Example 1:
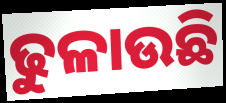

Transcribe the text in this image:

ଢୁଳାଉଛି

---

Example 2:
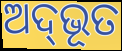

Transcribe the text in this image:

ଅଦ୍‍ଭୂତ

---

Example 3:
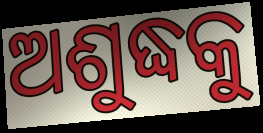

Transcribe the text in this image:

ଅଶୁଦ୍ଧକୁ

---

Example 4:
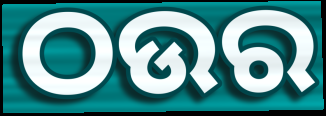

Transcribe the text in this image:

ଠଉର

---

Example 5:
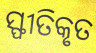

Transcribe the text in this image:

ସ୍ଫୀତିକୃତ